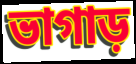
ভাগাড়